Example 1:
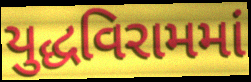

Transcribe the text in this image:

યુદ્ધવિરામમાં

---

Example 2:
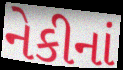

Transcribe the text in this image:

નેકીનાં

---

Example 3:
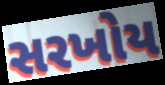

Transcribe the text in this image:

સરખોય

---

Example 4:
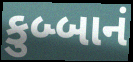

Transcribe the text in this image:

કુબ્બાનં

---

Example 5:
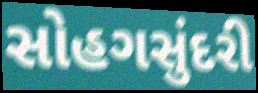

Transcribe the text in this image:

સોહગસુંદરી